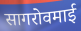
सागरोवमाई